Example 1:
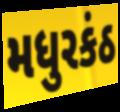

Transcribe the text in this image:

મધુરકંઠ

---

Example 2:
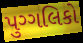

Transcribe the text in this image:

પુગ્ગલિકો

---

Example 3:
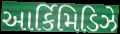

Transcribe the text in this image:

આર્કિમિડિઝે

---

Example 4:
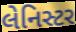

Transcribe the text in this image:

લેનિસ્ટર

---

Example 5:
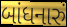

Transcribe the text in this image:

બાંધનારું